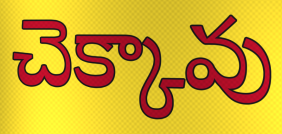
చెక్కావు